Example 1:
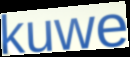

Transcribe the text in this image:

kuwe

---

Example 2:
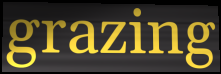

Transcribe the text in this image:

grazing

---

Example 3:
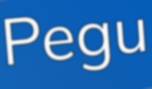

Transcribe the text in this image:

Pegu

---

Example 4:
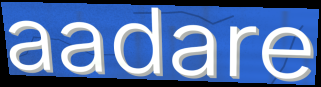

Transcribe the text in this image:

aadare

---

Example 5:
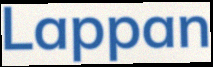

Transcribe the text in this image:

Lappan